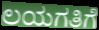
ಲಯಗತಿಗೆ